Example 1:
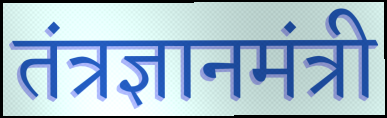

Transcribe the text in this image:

तंत्रज्ञानमंत्री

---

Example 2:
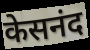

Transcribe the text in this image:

केसनंद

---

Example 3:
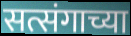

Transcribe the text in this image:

सत्संगाच्या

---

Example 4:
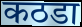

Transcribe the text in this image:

कठडा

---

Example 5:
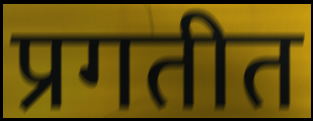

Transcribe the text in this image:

प्रगतीत